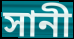
সানী